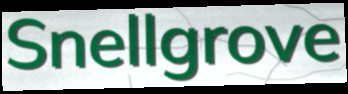
Snellgrove